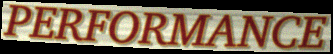
PERFORMANCE